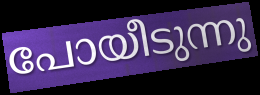
പോയീടുന്നു